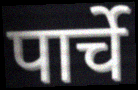
पार्चे